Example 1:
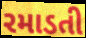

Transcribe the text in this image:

રમાડતી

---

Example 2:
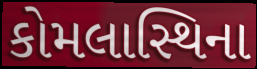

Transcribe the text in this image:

કોમલાસ્થિના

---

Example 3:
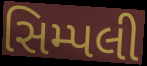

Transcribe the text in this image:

સિમ્પલી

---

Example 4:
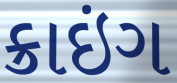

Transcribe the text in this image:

ક્રાઇંગ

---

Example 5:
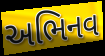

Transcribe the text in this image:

અભિનવ